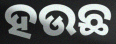
ହଉଛ